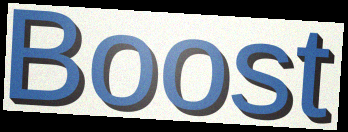
Boost